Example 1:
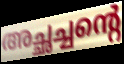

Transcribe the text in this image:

അച്ഛച്ചന്റെ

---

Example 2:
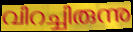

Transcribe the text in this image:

വിറച്ചിരുന്നു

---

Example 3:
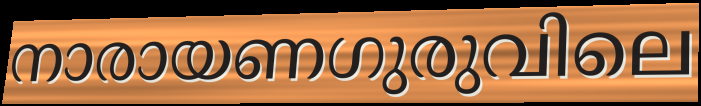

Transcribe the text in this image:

നാരായണഗുരുവിലെ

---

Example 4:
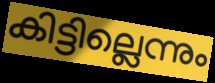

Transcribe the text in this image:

കിട്ടില്ലെന്നും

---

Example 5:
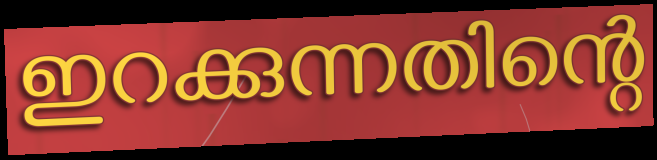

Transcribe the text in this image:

ഇറക്കുന്നതിന്റെ